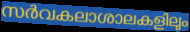
സർവകലാശാലകളിലും